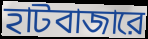
হাটবাজারে